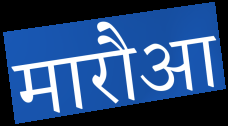
मारौआ